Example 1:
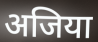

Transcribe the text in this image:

अजिया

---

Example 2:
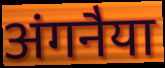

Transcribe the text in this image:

अंगनैया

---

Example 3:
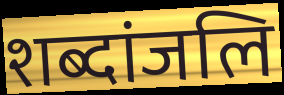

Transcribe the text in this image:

शब्दांजलि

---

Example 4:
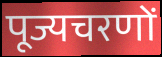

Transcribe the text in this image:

पूज्यचरणों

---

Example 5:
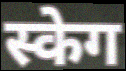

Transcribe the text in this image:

स्केग